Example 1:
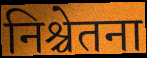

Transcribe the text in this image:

निश्चेतना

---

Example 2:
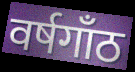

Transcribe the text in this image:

वर्षगाँठ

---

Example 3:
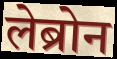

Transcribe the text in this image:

लेब्रोन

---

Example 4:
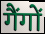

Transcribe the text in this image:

गैंगों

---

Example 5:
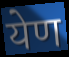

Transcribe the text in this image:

येण